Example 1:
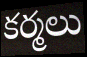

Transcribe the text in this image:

కర్మలు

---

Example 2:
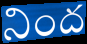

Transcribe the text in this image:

నింద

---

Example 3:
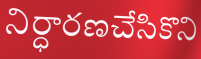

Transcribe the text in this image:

నిర్ధారణచేసికొని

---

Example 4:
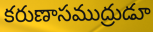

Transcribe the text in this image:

కరుణాసముద్రుడూ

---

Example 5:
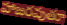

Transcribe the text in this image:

హాజరవుతూ